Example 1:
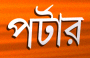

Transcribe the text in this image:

পর্টার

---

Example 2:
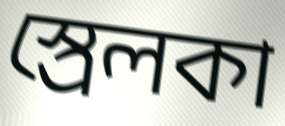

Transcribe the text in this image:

স্ত্রেলকা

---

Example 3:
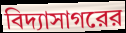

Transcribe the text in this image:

বিদ্যাসাগরের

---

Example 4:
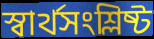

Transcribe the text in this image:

স্বার্থসংশ্লিষ্ট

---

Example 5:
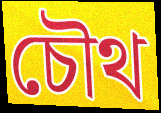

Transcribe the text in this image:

চৌথ